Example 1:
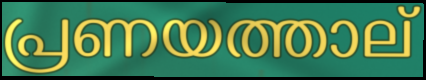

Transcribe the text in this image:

പ്രണയത്താല്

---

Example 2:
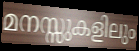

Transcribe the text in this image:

മനസ്സുകളിലും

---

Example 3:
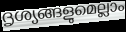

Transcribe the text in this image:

ദൃശ്യങ്ങളുമെല്ലാം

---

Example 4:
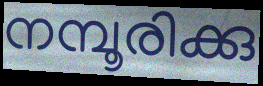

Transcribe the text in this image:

നമ്പൂരിക്കു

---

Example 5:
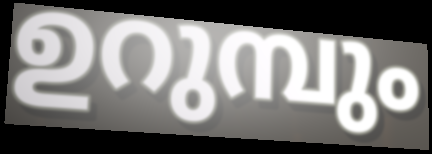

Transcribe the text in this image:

ഉറുമ്പും